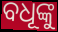
ବଧୂଙ୍କୁ